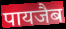
पायजैब